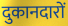
दुकानदारों